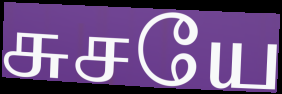
சுசயே